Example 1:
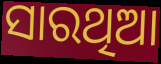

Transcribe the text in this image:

ସାରଥିଆ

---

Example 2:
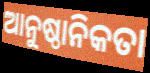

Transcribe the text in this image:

ଆନୁଷ୍ଠାନିକତା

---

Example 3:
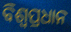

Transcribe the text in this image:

ବିଶ୍ୱପ୍ରଧାନ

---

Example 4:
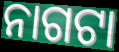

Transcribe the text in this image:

ନାଗଟା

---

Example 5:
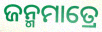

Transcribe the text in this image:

ଜନ୍ମମାତ୍ରେ